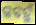
କବହୁଁ